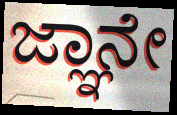
ಜ್ಞಾನೇ